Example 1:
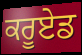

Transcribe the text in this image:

ਕਰੂਏਡ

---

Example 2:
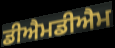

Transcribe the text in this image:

ਡੀਐਮਡੀਐਮ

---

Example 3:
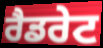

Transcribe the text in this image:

ਰੈਡਰੇਟ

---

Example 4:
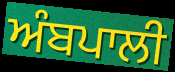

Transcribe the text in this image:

ਅੰਬਪਾਲੀ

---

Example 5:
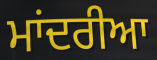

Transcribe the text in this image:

ਮਾਂਦਰੀਆ